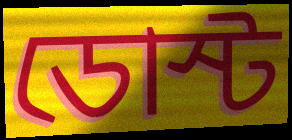
ডোস্ট